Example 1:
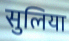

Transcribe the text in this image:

सुलिया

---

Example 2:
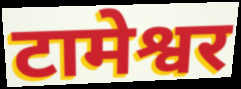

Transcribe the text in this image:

टामेश्वर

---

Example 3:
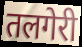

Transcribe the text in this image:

तलगेरी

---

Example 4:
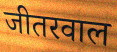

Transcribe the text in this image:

जीतरवाल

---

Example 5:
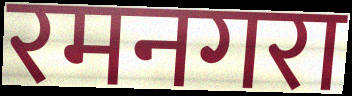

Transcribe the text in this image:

रमनगरा